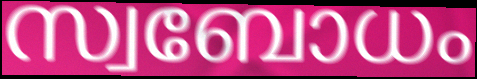
സ്വബോധം